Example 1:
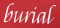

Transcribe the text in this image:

burial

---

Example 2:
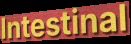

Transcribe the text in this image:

Intestinal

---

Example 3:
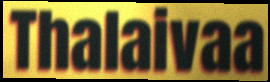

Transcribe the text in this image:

Thalaivaa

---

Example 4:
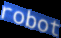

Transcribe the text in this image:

robot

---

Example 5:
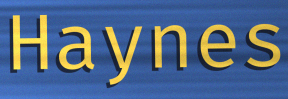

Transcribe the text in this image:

Haynes